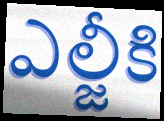
ఎల్జీకి